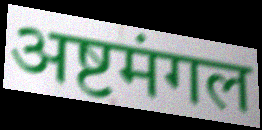
अष्टमंगल